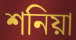
শনিয়া